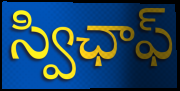
స్విఛాఫ్